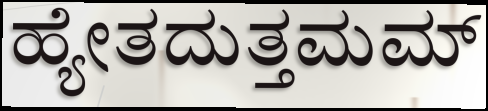
ಹ್ಯೇತದುತ್ತಮಮ್